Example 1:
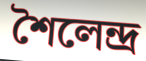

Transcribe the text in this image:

শৈলেন্দ্ৰ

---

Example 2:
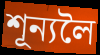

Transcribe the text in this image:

শূন্যলৈ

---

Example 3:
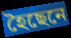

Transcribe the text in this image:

হৈছেনে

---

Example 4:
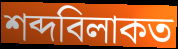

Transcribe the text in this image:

শব্দবিলাকত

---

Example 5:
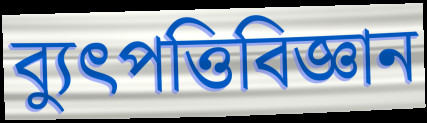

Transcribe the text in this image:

ব্যুৎপত্তিবিজ্ঞান